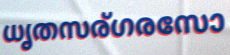
ധൃതസര്ഗരസോ